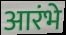
आरंभे